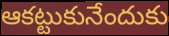
ఆకట్టుకునేందుకు